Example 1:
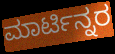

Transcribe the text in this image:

ಮಾರ್ಟಿನ್ನರ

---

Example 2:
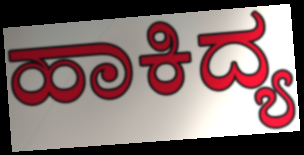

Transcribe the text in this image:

ಹಾಕಿದ್ಯ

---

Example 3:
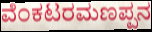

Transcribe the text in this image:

ವೆಂಕಟರಮಣಪ್ಪನ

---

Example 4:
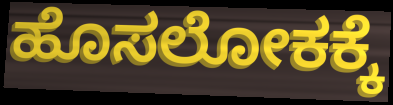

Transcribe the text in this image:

ಹೊಸಲೋಕಕ್ಕೆ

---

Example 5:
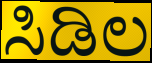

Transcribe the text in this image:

ಸಿಡಿಲ